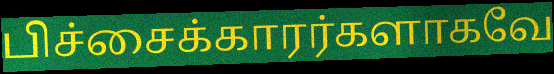
பிச்சைக்காரர்களாகவே